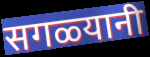
सगळ्यानी